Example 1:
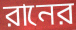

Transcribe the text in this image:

রানের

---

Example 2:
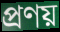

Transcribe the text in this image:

প্রণয়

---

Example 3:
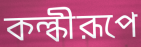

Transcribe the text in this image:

কল্কীরূপে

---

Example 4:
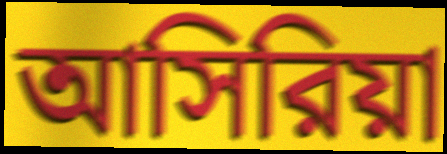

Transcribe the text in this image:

আসিরিয়া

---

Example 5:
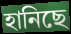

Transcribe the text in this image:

হানিছে